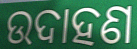
ଉଦାହଣ